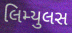
લિમ્યુલસ